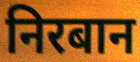
निरबान